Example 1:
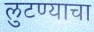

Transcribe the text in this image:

लुटण्याचा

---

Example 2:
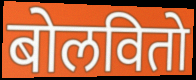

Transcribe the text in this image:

बोलवितो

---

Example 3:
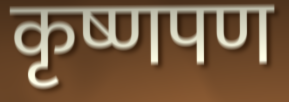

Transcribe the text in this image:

कृष्णपण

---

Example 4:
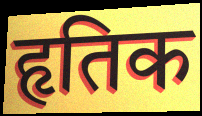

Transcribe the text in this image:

हृतिक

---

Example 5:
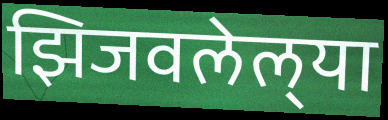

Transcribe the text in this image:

झिजवलेल्या